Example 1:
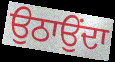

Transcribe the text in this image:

ਉਠਾਉਂਦਾ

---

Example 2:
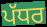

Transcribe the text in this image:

ਪੱਧਰ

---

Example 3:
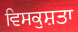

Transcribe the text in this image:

ਵਿਸਕੁਸ਼ਤਾ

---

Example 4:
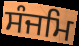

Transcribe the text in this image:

ਸੰਜਮਿ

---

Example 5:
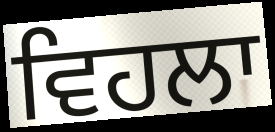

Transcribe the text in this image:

ਵਿਹਲਾ